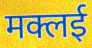
मक्लई